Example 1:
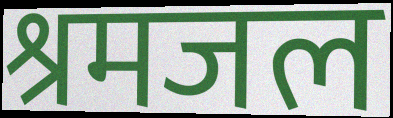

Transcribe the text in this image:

श्रमजल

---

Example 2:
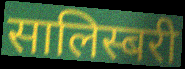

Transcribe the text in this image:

सालिस्बरी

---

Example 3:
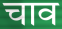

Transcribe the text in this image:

चाव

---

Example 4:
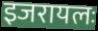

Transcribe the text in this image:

इजरायलः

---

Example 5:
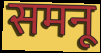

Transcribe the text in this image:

समनू